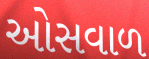
ઓસવાળ